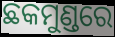
ଛକମୁଣ୍ଡରେ